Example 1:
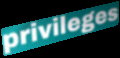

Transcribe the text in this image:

privileges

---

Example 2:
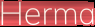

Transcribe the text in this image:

Herma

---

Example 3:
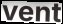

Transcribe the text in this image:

vent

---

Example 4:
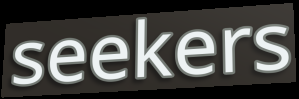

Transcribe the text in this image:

seekers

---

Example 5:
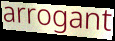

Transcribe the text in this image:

arrogant